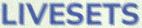
LIVESETS